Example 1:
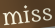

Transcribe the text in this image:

miss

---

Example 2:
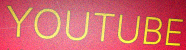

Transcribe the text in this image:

YOUTUBE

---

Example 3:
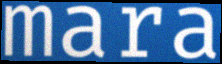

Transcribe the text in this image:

mara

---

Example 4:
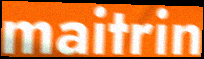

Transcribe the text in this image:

maitrin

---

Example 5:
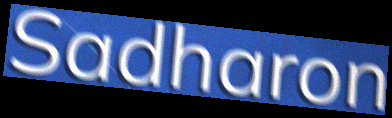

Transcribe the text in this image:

Sadharon